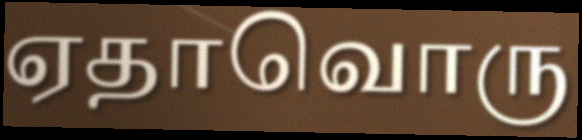
ஏதாவொரு